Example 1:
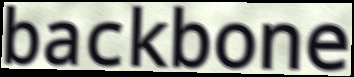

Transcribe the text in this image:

backbone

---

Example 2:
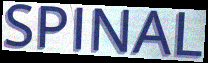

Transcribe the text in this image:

SPINAL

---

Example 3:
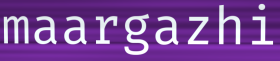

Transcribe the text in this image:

maargazhi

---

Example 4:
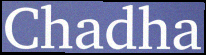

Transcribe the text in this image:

Chadha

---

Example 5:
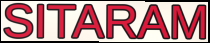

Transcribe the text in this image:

SITARAM